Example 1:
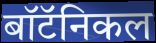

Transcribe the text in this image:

बॉटॅनिकल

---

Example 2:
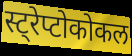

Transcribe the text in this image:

स्ट्रेप्टोकोकल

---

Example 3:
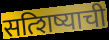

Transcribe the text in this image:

सत्शिष्याची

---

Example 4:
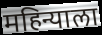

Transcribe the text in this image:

महिन्याला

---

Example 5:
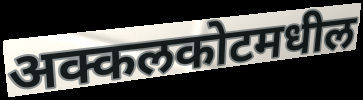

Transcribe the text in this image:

अक्कलकोटमधील